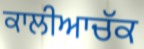
ਕਾਲੀਆਚੱਕ